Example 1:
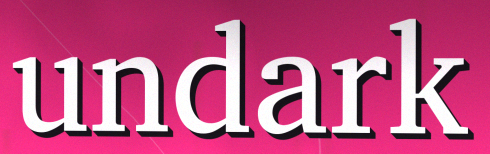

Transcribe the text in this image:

undark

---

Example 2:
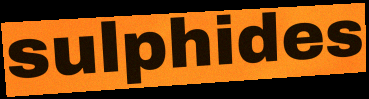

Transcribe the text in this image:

sulphides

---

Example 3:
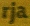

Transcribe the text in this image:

rja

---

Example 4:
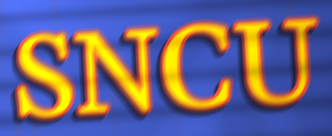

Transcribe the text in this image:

SNCU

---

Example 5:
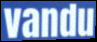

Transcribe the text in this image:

vandu